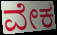
ವೇಕ